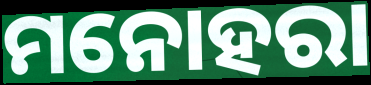
ମନୋହରା